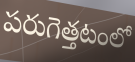
పరుగెత్తటంలో